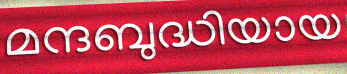
മന്ദബുദ്ധിയായ